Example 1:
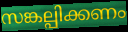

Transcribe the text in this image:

സങ്കല്പിക്കണം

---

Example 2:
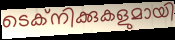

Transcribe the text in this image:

ടെക്നിക്കുകളുമായി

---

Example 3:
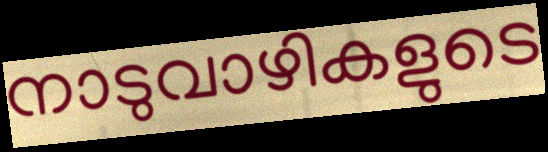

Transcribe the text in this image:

നാടുവാഴികളുടെ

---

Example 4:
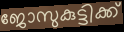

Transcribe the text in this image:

ജോസുകുട്ടിക്ക്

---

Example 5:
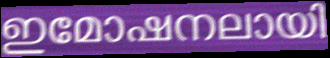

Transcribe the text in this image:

ഇമോഷനലായി